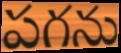
పగను